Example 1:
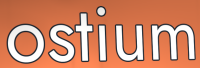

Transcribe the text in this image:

ostium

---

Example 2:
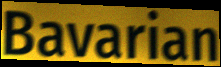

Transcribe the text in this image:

Bavarian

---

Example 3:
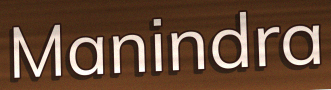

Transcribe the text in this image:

Manindra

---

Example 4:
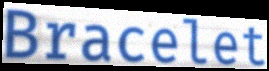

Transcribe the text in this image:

Bracelet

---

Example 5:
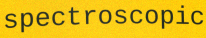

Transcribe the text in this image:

spectroscopic